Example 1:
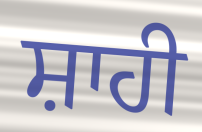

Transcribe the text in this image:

ਸ਼ਾਹੀ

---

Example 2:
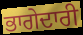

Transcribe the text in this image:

ਭਾਗੇਦਾਰੀ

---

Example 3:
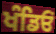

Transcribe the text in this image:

ਖੰਡਿਓਂ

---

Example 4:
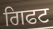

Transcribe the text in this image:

ਗਿਫਟ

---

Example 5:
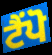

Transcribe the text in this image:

ਟੈਂਪੋ